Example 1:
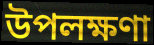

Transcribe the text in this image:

উপলক্ষণা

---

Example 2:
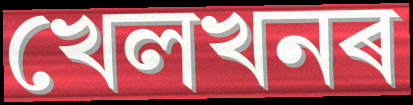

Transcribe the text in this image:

খেলখনৰ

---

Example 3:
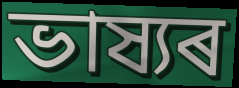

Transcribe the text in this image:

ভাষ্যৰ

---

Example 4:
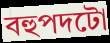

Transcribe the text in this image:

বহুপদটো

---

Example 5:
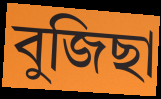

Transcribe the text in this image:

বুজিছা